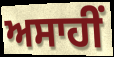
ਅਸਾਹੀਂ